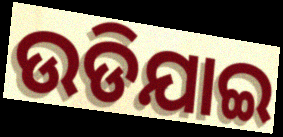
ଉଡିଯାଇ